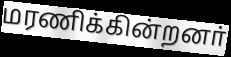
மரணிக்கின்றனர்